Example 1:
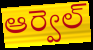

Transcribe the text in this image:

ఆర్వెల్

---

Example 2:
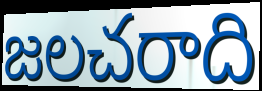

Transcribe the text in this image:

జలచరాది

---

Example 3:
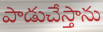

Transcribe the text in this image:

పాడుచేస్తాను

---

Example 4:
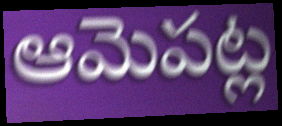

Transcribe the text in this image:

ఆమెపట్ల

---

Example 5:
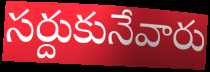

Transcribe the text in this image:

సర్దుకునేవారు